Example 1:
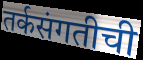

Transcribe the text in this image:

तर्कसंगतीची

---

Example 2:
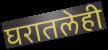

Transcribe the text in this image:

घरातलेही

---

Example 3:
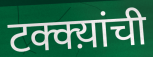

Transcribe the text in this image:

टक्क्य़ांची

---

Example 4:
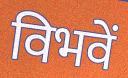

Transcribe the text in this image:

विभवें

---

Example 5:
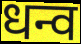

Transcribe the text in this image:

धन्व